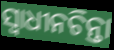
ସ୍ୱାଧୀନଚିନ୍ତା